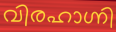
വിരഹാഗ്നി